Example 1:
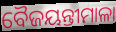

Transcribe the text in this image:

ବୈଜୟନ୍ତୀମାଳା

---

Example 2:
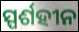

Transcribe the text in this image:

ସ୍ପର୍ଶହୀନ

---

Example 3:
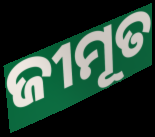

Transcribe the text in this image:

ଜୀମୂତ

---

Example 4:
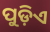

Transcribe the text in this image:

ପୁଡ଼ିଏ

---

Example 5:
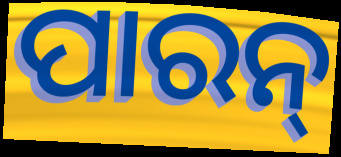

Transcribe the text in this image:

ପାରନ୍